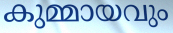
കുമ്മായവും